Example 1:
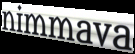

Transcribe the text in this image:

nimmava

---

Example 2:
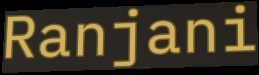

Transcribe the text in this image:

Ranjani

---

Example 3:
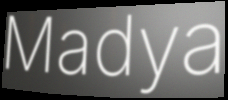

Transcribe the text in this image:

Madya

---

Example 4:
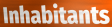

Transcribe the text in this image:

Inhabitants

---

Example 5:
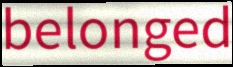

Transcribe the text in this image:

belonged